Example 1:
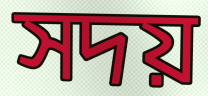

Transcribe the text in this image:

সদয়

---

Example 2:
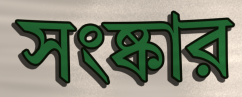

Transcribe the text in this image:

সংষ্কার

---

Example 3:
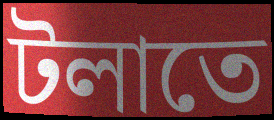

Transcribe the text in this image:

টলাতে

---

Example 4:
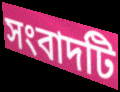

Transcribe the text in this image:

সংবাদটি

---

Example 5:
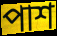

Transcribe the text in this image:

পাশ